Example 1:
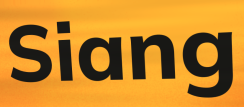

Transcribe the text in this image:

Siang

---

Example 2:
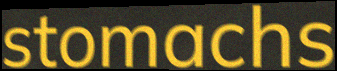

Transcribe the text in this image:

stomachs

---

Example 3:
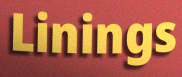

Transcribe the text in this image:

Linings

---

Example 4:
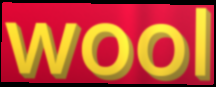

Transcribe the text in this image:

wool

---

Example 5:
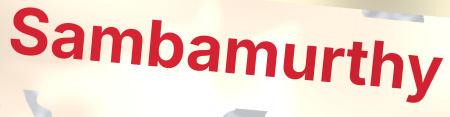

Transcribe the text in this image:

Sambamurthy